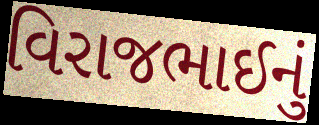
વિરાજભાઈનું